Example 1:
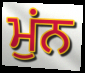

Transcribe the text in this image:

ਮੁਂਨ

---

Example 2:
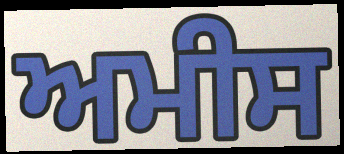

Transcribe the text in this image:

ਅਮੀਸ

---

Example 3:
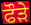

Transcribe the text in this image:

ਫੌੜੇ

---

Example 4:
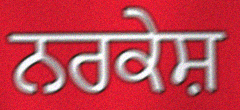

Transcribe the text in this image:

ਨਰਕੇਸ਼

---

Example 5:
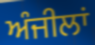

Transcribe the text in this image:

ਅੰਜੀਲਾਂ